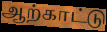
ஆற்காட்டு